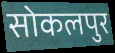
सोकलपुर